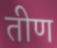
तीण